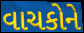
વાચકોને